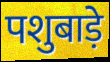
पशुबाड़े